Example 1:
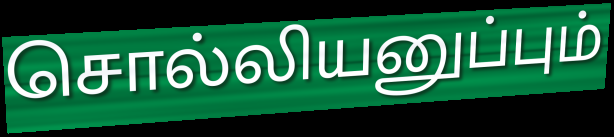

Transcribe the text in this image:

சொல்லியனுப்பும்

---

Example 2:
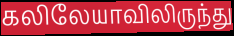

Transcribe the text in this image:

கலிலேயாவிலிருந்து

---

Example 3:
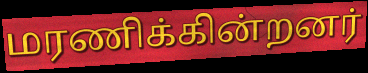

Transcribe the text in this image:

மரணிக்கின்றனர்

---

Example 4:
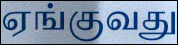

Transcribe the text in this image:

ஏங்குவது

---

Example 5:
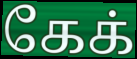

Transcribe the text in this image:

கேக்